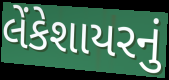
લેંકેશાયરનું